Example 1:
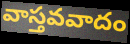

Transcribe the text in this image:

వాస్తవవాదం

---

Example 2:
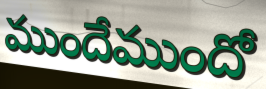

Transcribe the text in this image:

ముందేముందో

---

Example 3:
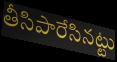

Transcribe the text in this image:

తీసిపారేసినట్టు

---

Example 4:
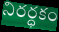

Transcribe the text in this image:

నిరర్ధకం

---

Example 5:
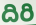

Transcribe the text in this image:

దిరి